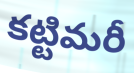
కట్టిమరీ